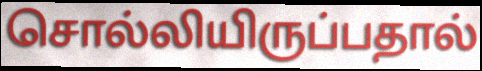
சொல்லியிருப்பதால்